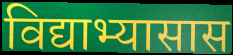
विद्याभ्यासास